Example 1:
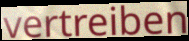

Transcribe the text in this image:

vertreiben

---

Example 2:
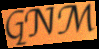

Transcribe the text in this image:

GNM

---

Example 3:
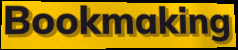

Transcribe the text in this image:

Bookmaking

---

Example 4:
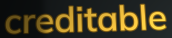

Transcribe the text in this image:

creditable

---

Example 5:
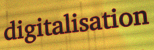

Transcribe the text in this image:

digitalisation